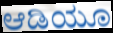
ಆಡಿಯೂ